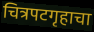
चित्रपटगृहाचा